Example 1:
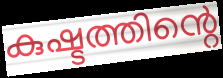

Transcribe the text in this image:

കുഷ്ടത്തിന്റെ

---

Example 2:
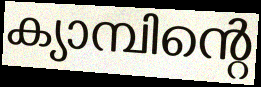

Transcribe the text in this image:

ക്യാമ്പിന്റെ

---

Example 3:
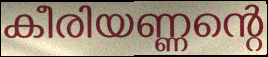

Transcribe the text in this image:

കീരിയണ്ണന്റെ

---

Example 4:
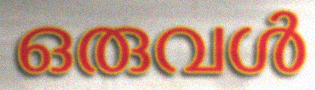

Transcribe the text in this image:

ഒരുവൾ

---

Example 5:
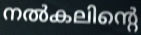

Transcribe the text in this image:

നൽകലിന്റെ